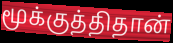
மூக்குத்திதான்